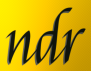
ndr